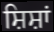
ਸ਼ਿਸ਼ਾਂ